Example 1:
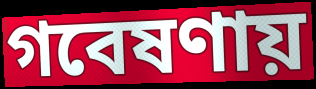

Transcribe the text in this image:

গবেষণায়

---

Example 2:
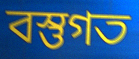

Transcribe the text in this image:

বস্তুগত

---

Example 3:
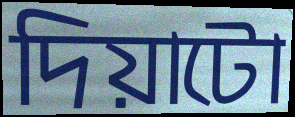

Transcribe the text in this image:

দিয়াটো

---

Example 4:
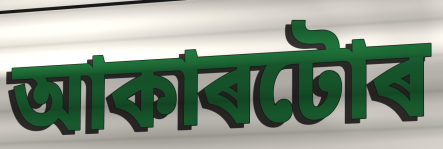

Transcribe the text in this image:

আকাৰটোৰ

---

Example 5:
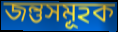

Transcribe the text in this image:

জন্তুসমূহক